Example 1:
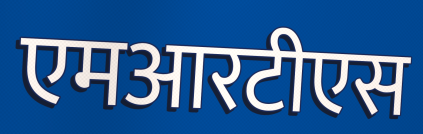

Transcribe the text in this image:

एमआरटीएस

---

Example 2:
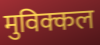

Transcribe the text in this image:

मुविक्कल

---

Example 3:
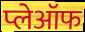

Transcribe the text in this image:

प्‍लेऑफ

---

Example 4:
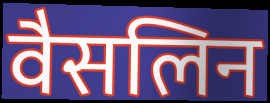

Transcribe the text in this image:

वैसलिन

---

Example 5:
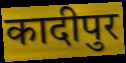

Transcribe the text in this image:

कादीपुर